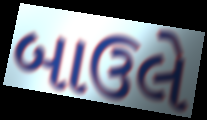
બાઉલે